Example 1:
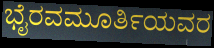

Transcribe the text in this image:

ಭೈರವಮೂರ್ತಿಯವರ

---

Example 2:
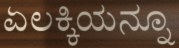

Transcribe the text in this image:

ಏಲಕ್ಕಿಯನ್ನೂ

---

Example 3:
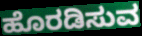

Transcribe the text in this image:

ಹೊರಡಿಸುವ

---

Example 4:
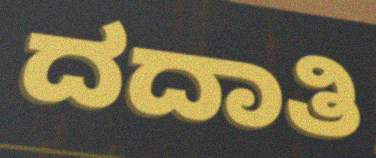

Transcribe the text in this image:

ದದಾತಿ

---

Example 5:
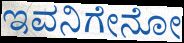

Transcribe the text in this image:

ಇವನಿಗೇನೋ